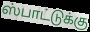
ஸ்பாட்டுக்கு